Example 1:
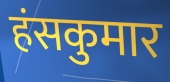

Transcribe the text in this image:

हंसकुमार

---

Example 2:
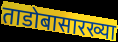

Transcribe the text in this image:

ताडोबासारख्या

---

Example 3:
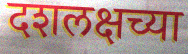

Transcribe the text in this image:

दशलक्षच्या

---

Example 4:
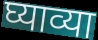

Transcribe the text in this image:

घ्याव्या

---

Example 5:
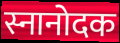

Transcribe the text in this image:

स्नानोदक